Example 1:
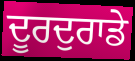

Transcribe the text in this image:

ਦੂਰਦੁਰਾਡੇ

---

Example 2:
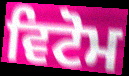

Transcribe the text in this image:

ਵਿਟੋਮ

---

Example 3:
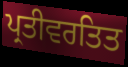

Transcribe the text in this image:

ਪ੍ਰਤੀਵਰਤਿਤ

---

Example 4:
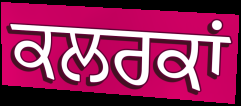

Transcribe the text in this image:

ਕਲਰਕਾਂ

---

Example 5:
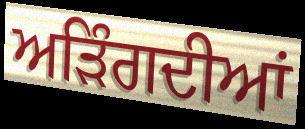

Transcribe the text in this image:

ਅੜਿੰਗਦੀਆਂ